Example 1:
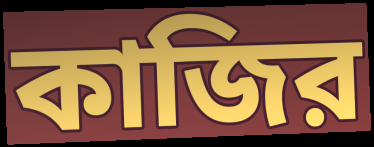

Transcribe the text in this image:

কাজির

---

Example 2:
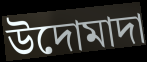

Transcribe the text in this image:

উদোমাদা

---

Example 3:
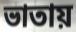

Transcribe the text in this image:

ভাতায়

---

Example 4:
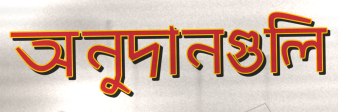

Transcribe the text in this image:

অনুদানগুলি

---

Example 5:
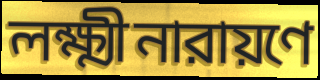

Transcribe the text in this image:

লক্ষ্মীনারায়ণে